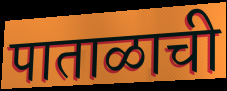
पाताळाची